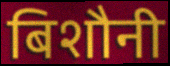
बिशौनी